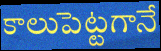
కాలుపెట్టగానే